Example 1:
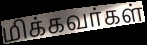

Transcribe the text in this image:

மிக்கவர்கள்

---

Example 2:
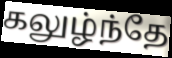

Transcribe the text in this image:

கலுழ்ந்தே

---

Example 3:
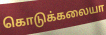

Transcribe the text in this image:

கொடுக்கலையா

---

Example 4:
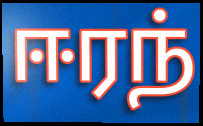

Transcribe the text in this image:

ஈரந்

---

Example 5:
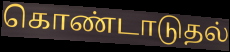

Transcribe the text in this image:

கொண்டாடுதல்